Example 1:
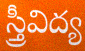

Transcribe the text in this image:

స్త్రీవిద్య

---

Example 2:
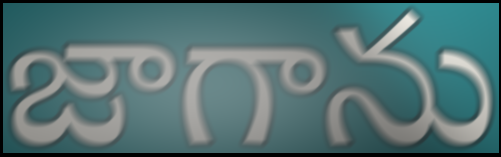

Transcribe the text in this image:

జాగాను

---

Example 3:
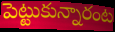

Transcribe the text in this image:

పెట్టుకున్నారంట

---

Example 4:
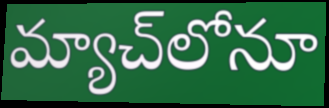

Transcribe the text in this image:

మ్యాచ్‌లోనూ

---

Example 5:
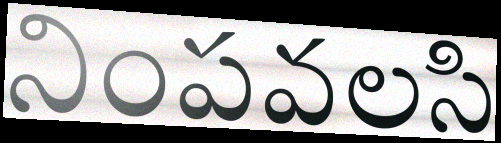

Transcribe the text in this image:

నింపవలసి